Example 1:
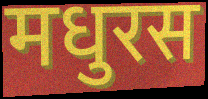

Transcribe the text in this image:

मधुरस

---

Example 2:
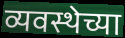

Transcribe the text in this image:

व्यवस्थेच्या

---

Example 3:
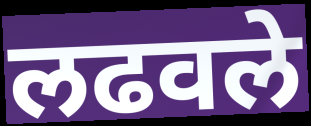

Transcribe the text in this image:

लढवले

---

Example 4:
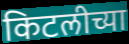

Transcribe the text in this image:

किटलीच्या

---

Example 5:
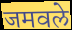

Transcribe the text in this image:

जमवले